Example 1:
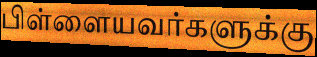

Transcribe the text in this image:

பிள்ளையவர்களுக்கு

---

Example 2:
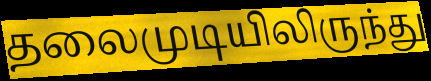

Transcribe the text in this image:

தலைமுடியிலிருந்து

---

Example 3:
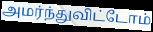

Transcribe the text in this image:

அமர்ந்துவிட்டோம்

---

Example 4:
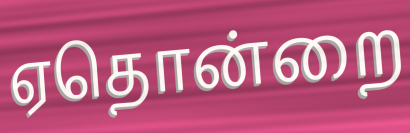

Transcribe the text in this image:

ஏதொன்றை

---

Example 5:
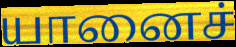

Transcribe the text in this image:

யானைச்